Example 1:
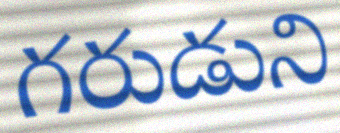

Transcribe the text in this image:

గరుడుని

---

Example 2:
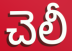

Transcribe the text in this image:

చెలీ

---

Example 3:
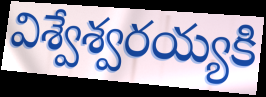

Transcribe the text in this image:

విశ్వేశ్వరయ్యకి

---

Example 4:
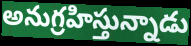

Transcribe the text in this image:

అనుగ్రహిస్తున్నాడు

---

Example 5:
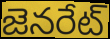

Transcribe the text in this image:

జెనరేట్